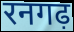
रनगढ़